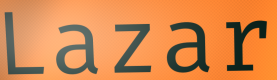
Lazar